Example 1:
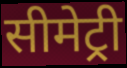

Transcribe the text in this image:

सीमेट्री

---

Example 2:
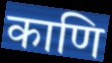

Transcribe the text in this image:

काणि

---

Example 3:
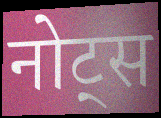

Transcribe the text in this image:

नोट्‌स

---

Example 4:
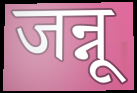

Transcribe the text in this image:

जन्नू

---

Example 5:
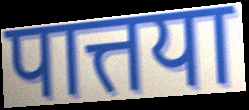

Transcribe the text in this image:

पात्तया